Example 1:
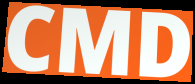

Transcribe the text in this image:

CMD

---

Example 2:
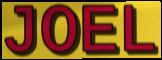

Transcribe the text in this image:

JOEL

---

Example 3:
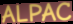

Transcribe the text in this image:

ALPAC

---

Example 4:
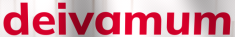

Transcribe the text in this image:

deivamum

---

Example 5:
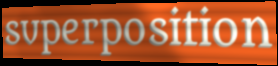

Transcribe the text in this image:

superposition